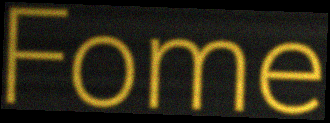
Fome